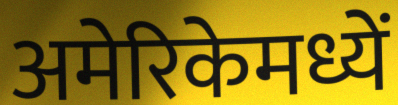
अमेरिकेमध्यें